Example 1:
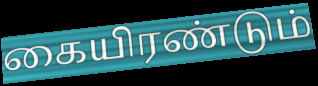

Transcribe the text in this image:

கையிரண்டும்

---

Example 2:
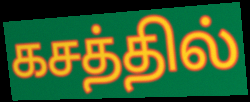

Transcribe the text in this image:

கசத்தில்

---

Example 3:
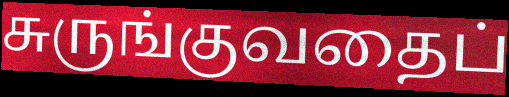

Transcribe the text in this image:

சுருங்குவதைப்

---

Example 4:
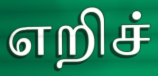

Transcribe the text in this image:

எறிச்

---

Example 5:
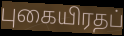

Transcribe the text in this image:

புகையிரதப்